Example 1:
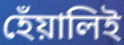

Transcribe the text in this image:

হেঁয়ালিই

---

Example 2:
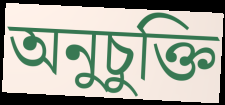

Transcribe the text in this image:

অনুচুক্তি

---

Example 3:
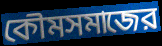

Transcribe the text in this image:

কৌমসমাজের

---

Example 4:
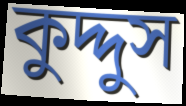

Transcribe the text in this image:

কুদ্দুস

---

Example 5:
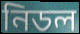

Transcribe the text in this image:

নিডল